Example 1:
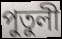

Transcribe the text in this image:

পুতুলী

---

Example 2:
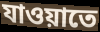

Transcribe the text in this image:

যাওয়াতে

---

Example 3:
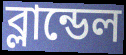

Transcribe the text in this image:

ব্লান্ডেল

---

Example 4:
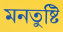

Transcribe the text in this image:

মনতুষ্টি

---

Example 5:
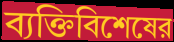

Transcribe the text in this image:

ব্যক্তিবিশেষের